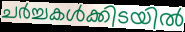
ചർച്ചകൾക്കിടയിൽ